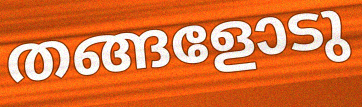
തങ്ങളോടു